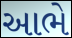
આભે